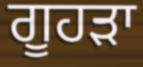
ਗੂਹੜਾ